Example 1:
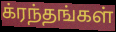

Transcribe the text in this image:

க்ரந்தங்கள்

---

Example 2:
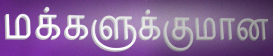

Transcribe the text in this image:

மக்களுக்குமான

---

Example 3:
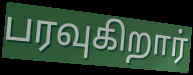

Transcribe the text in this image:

பரவுகிறார்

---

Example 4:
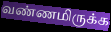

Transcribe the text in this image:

வண்ணமிருக்க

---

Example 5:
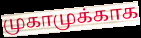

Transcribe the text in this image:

முகாமுக்காக